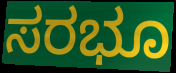
ಸರಭೂ